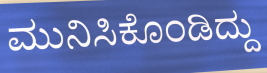
ಮುನಿಸಿಕೊಂಡಿದ್ದು